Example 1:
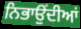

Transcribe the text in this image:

ਨਿਭਾਉਂਦੀਆਂ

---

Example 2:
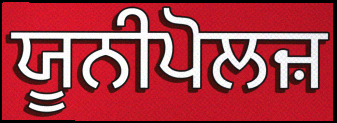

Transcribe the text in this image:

ਯੂਨੀਪੋਲਜ਼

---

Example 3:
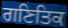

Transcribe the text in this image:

ਗਣਿਤਿਕ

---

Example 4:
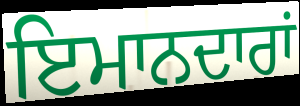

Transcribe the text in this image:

ਇਮਾਨਦਾਰਾਂ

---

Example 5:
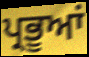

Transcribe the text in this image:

ਪ੍ਰਭੂਆਂ